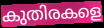
കുതിരകളെ